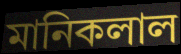
মানিকলাল